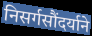
निसर्गसौंदर्याने